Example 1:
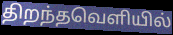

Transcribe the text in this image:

திறந்தவெளியில்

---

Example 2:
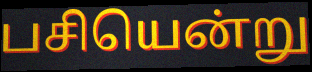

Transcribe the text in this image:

பசியென்று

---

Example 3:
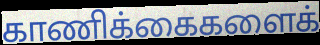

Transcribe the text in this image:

காணிக்கைகளைக்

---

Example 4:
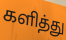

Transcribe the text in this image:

களித்து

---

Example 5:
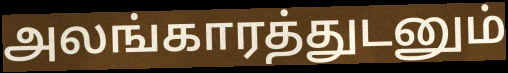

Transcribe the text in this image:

அலங்காரத்துடனும்